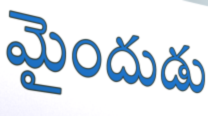
మైందుడు